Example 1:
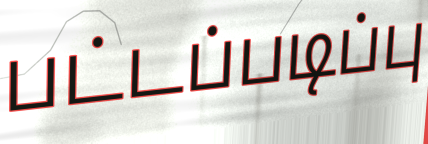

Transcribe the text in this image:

பட்டப்படிப்பு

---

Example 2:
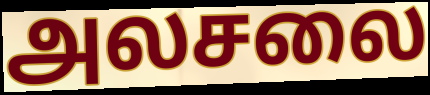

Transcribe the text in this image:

அலசலை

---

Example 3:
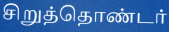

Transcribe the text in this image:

சிறுத்தொண்டர்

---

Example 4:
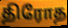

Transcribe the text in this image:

திரோத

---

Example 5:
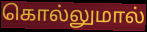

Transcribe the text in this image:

கொல்லுமால்